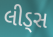
લીડ્સ